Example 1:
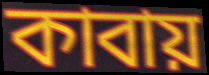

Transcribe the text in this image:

কাবায়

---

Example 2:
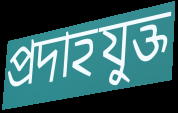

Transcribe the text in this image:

প্রদাহযুক্ত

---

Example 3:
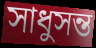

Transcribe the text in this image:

সাধুসন্ত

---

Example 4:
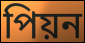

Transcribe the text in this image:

পিয়ন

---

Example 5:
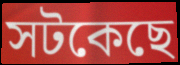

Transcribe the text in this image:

সটকেছে